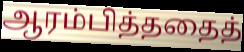
ஆரம்பித்ததைத்